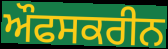
ਔਫਸਕਰੀਨ